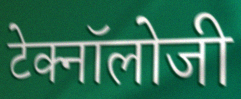
टेक्नॉलोजी